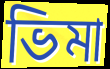
ভিমা